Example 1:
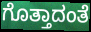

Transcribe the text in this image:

ಗೊತ್ತಾದಂತೆ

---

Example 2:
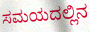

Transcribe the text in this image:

ಸಮಯದಲ್ಲಿನ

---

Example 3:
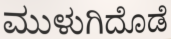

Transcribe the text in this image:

ಮುಳುಗಿದೊಡೆ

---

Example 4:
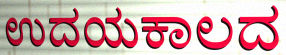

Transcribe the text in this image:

ಉದಯಕಾಲದ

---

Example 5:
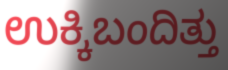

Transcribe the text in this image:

ಉಕ್ಕಿಬಂದಿತ್ತು